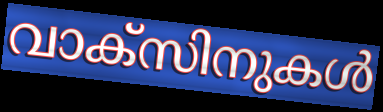
വാക്സിനുകൾ